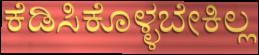
ಕೆಡಿಸಿಕೊಳ್ಳಬೇಕಿಲ್ಲ